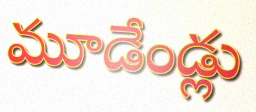
మూడేండ్లు